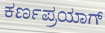
ಕರ್ಣಪ್ರಯಾಗ್